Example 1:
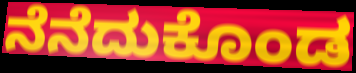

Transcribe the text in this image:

ನೆನೆದುಕೊಂಡ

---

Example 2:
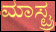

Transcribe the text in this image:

ಮಾಸ್ಟ್ರ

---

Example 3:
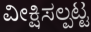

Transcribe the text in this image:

ವೀಕ್ಷಿಸಲ್ಪಟ್ಟ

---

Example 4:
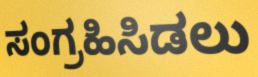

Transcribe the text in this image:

ಸಂಗ್ರಹಿಸಿಡಲು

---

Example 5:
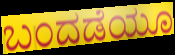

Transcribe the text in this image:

ಬಂದಡೆಯೂ